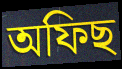
অফিছ